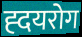
ह्दयरोग